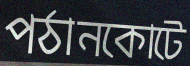
পঠানকোটে